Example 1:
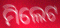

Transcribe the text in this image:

ମିଲେଟ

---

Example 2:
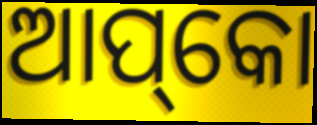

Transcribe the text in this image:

ଆପ୍‌କୋ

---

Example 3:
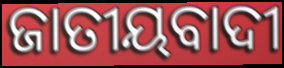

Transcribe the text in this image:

ଜାତୀୟବାଦୀ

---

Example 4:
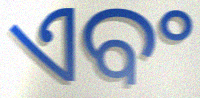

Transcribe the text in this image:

ଏବଂ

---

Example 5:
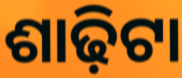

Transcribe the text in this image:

ଶାଢ଼ିଟା